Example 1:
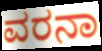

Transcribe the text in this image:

ವರನಾ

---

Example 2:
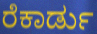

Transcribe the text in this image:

ರೆಕಾರ್ಡು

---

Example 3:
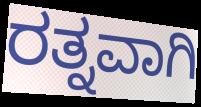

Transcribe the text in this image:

ರತ್ನವಾಗಿ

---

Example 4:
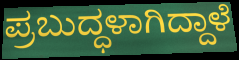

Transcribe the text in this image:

ಪ್ರಬುದ್ಧಳಾಗಿದ್ದಾಳೆ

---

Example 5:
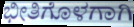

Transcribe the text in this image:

ಭೀತಿಗೊಳಗಾಗಿ